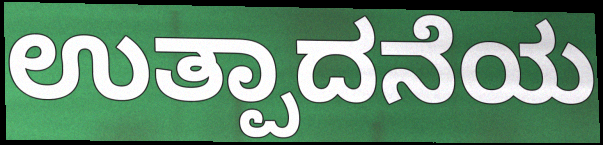
ಉತ್ಪಾದನೆಯ